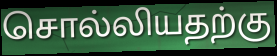
சொல்லியதற்கு